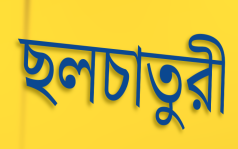
ছলচাতুরী